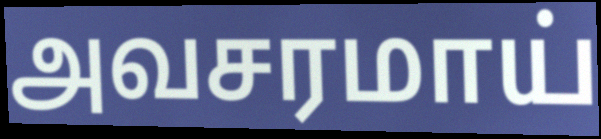
அவசரமாய்